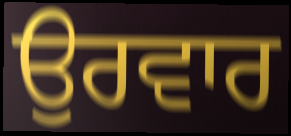
ਉਰਵਾਰ